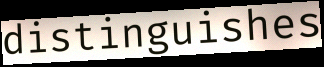
distinguishes